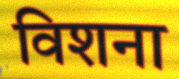
विशना